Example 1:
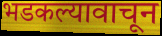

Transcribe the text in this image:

भडकल्यावाचून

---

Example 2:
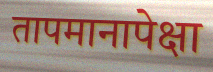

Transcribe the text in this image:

तापमानापेक्षा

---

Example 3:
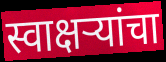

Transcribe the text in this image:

स्वाक्षऱ्यांचा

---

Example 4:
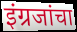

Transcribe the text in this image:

इंग्रजांचा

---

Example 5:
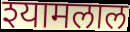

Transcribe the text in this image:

श्यामलाल